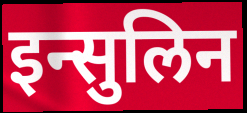
इन्सुलिन